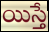
యిస్తే